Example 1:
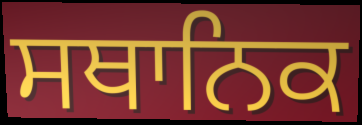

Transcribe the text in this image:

ਸਥਾਨਿਕ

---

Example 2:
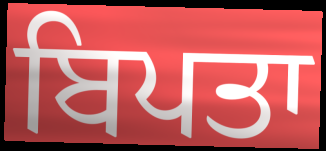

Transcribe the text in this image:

ਬਿਪਤਾ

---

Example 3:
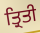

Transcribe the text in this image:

ਤ੍ਰਿਤੀ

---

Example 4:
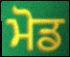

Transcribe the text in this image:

ਮੋਡ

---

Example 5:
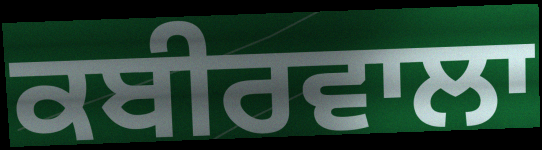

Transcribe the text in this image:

ਕਬੀਰਵਾਲਾ